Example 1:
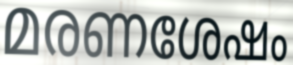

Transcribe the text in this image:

മരണശേഷം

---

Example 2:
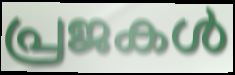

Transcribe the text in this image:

പ്രജകൾ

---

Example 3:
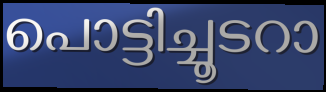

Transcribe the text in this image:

പൊട്ടിച്ചൂടറാ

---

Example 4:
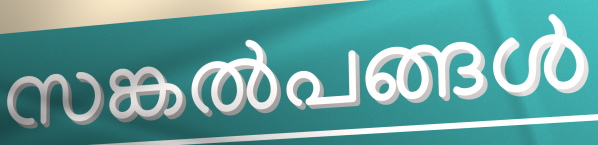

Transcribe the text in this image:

സങ്കൽപങ്ങൾ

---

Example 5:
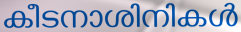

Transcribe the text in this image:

കീടനാശിനികൾ